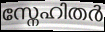
സ്നേഹിതർ